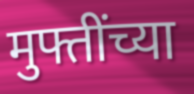
मुफ्तींच्या